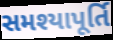
સમશ્યાપૂર્તિ